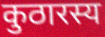
कुठारस्य